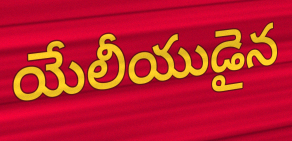
యేలీయుడైన